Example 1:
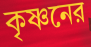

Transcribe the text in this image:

কৃষ্ণনের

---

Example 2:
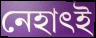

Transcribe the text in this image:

নেহাৎই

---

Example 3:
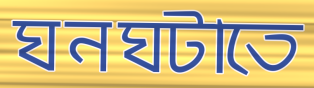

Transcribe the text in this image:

ঘনঘটাতে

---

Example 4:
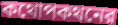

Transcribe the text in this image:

কথোপকথনের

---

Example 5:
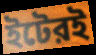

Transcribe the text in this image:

ইটেরই